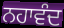
ਨਹਾਵੰਦ